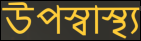
উপস্বাস্থ্য